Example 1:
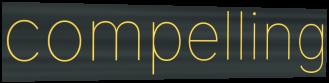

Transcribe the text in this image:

compelling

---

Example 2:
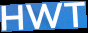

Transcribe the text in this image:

HWT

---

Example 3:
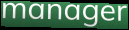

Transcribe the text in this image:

manager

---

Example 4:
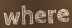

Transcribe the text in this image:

where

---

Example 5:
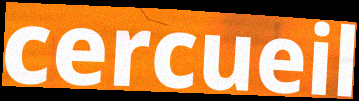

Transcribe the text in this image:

cercueil